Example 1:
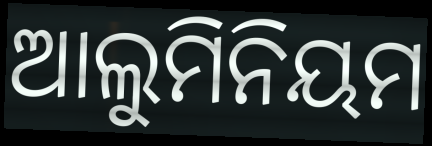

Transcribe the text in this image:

ଆଲୁମିନିୟମ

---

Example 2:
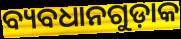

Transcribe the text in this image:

ବ୍ୟବଧାନଗୁଡ଼ାକ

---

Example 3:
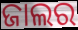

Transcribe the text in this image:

ଜାଲର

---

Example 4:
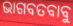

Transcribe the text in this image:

ଭାଗବତବାବୁ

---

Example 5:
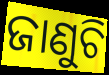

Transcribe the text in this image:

ଜାଣୁଚି